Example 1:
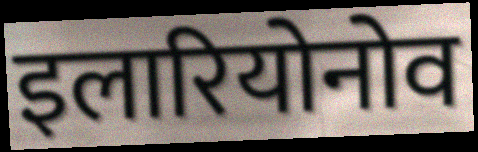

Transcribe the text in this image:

इलारियोनोव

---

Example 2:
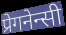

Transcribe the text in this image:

प्रेगनेन्सी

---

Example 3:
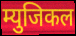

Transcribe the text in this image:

म्युजिकल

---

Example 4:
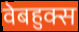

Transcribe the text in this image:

वेबहुक्स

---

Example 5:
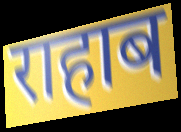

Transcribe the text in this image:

राहाब